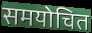
समयोचित